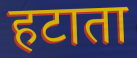
हटाता